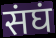
संघं